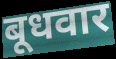
बूधवार